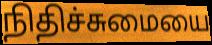
நிதிச்சுமையை